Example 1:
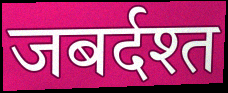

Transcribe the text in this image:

जबर्दश्त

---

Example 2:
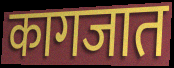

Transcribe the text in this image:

कागजात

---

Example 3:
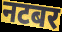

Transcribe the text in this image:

नटबर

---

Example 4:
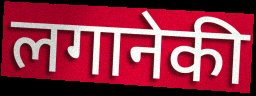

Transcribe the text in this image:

लगानेकी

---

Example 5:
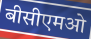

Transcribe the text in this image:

बीसीएमओ